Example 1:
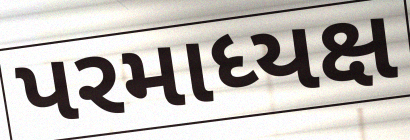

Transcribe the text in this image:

પરમાધ્યક્ષ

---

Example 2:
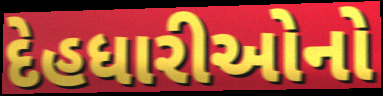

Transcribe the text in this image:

દેહધારીઓનો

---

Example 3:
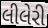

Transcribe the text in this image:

લીલેરી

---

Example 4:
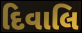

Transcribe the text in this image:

દિવાલિ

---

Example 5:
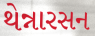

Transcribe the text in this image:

થેન્નારસન